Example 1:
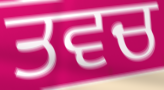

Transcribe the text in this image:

ਤਵਚ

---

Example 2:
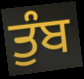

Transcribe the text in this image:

ਤੁੰਬ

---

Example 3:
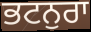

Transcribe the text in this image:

ਭਟਨੁਰਾ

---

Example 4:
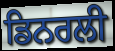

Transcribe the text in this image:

ਡਿਨਰਲੀ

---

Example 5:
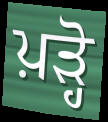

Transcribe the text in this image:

ਪ਼ੜ੍ਹੋ